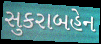
સુકરાબહેન